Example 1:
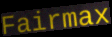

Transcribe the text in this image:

Fairmax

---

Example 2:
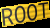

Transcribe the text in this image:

ROOT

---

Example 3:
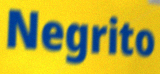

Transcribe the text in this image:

Negrito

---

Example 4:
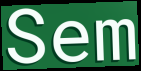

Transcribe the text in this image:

Sem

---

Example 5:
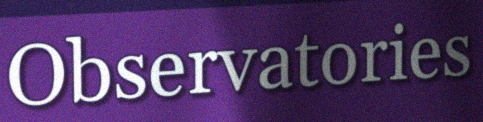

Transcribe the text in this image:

Observatories